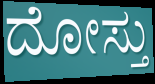
ದೋಸ್ತು